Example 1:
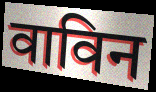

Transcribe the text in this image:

वाविन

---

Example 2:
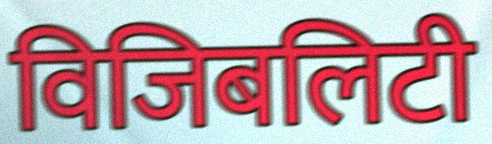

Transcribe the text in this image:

विजिबलिटी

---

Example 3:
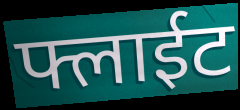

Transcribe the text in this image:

फ्लाईट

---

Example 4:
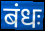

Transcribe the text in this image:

बंधः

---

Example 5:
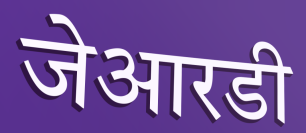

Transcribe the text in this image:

जेआरडी